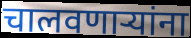
चालवणार्‍यांना